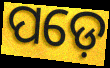
ପଡ଼େ